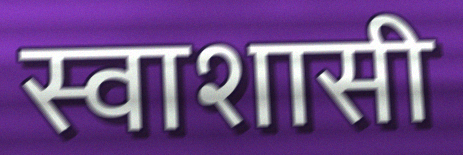
स्वाशासी